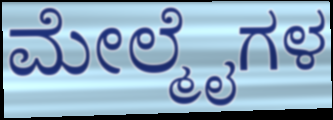
ಮೇಲ್ಮೈಗಳ